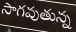
సాగవుతున్న